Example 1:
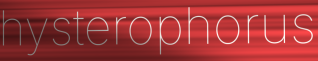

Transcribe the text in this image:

hysterophorus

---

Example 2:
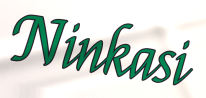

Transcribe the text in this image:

Ninkasi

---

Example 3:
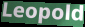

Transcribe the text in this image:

Leopold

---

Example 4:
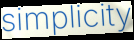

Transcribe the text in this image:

simplicity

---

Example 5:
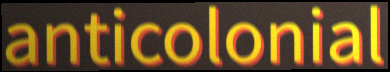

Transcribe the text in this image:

anticolonial